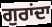
ਗੁਰਾਂਦਾ